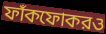
ফাঁকফোকরও